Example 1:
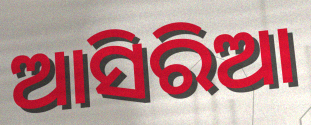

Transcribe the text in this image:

ଆସିରିଆ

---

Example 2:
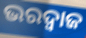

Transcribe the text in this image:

ଭରଦ୍ଵାଜ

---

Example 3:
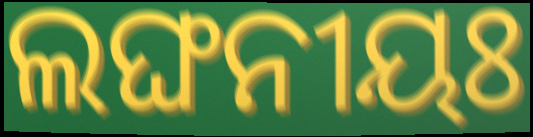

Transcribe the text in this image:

ଲଙ୍ଘନୀୟଃ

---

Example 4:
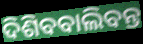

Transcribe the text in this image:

ଦିଶିବବାଲିବନ୍ତ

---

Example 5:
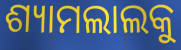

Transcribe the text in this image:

ଶ୍ୟାମଲାଲକୁ